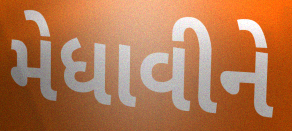
મેધાવીને